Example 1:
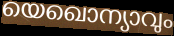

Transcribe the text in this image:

യെഖൊന്യാവും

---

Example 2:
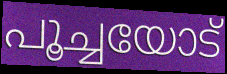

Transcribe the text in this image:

പൂച്ചയോട്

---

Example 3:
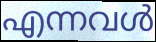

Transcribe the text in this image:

എന്നവൾ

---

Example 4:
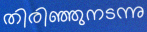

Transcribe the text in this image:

തിരിഞ്ഞുനടന്നു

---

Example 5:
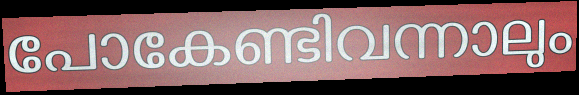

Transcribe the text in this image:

പോകേണ്ടിവന്നാലും